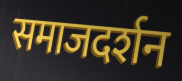
समाजदर्शन